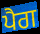
ਪੈਗ